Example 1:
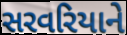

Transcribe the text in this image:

સરવરિયાને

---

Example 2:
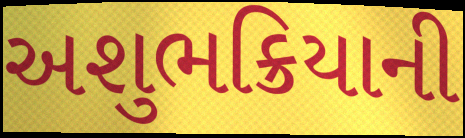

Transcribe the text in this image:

અશુભક્રિયાની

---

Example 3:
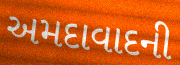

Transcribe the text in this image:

અમદાવાદની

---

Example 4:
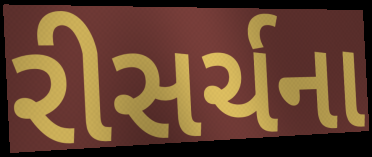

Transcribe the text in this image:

રીસર્ચના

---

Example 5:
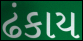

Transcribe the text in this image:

ઢંકાય